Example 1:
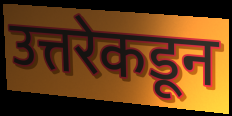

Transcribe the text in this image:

उत्तरेकडून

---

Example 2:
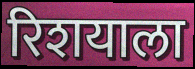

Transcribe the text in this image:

रिशयाला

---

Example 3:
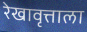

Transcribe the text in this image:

रेखावृत्ताला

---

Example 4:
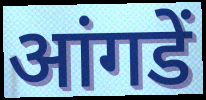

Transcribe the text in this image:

आंगडें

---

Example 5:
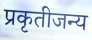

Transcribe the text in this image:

प्रकृतीजन्य